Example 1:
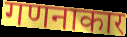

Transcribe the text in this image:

गणनाकार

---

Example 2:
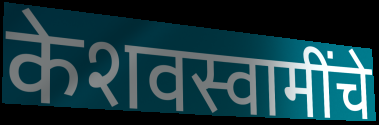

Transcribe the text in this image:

केशवस्वामींचे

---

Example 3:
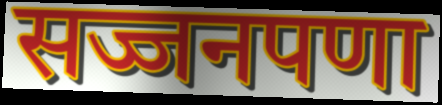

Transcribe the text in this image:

सज्जनपणा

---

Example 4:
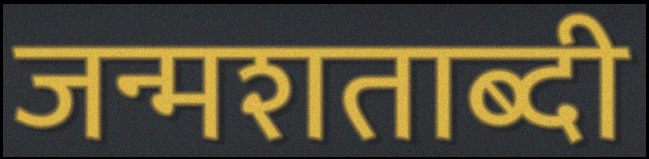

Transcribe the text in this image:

जन्मशताब्दी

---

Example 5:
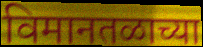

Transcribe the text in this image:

विमानतळाच्या